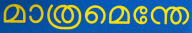
മാത്രമെന്തേ